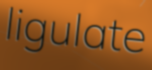
ligulate